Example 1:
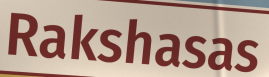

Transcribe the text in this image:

Rakshasas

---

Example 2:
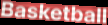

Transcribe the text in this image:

Basketball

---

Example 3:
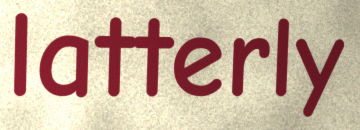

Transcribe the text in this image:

latterly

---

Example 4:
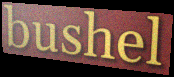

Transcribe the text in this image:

bushel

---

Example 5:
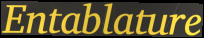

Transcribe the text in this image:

Entablature